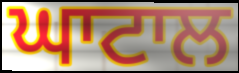
ਘਾਟਾਲ